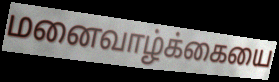
மனைவாழ்க்கையை